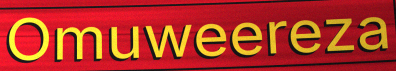
Omuweereza